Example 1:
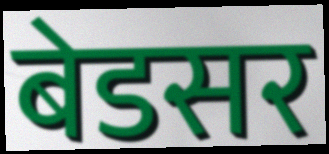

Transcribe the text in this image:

बेडसर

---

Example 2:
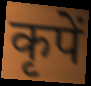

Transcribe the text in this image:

कृपें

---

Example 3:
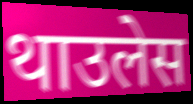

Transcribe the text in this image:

थाउलेस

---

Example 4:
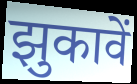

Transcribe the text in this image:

झुकावें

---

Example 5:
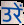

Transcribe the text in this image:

उरें